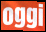
oggi